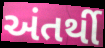
અંતર્થી